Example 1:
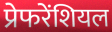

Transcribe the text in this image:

प्रेफरेंशियल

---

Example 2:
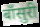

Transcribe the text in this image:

बाँसुरी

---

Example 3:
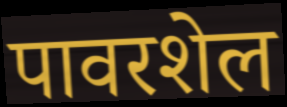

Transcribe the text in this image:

पावरशेल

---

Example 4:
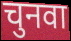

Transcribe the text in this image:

चुनवा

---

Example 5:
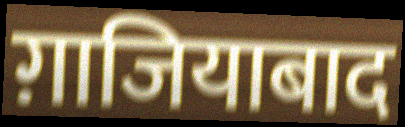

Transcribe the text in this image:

ग़ाजियाबाद